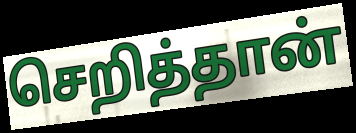
செறித்தான்